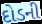
દોડની